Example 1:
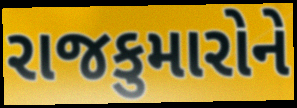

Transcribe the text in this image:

રાજકુમારોને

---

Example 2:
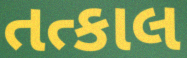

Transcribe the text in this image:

તત્કાલ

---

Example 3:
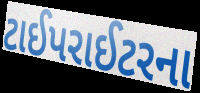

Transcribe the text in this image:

ટાઈપરાઈટરના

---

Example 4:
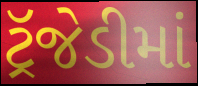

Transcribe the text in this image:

ટ્રૅજેડીમાં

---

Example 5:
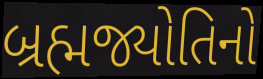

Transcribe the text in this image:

બ્રહ્મજ્યોતિનો